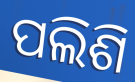
ପଲିଶି